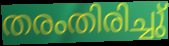
തരംതിരിച്ചു്